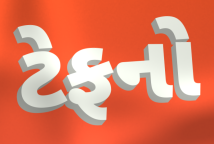
ટેફનો